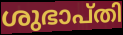
ശുഭാപ്തി